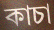
কাচা